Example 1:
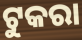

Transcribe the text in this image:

ଟୁକରା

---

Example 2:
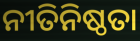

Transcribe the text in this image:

ନୀତିନିଷ୍ଠତା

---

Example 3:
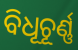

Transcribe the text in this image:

ବିଧୂଚୂର୍ଣ୍ଣ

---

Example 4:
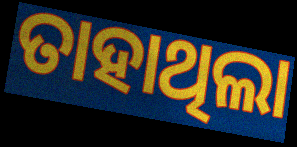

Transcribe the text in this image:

ତାହାଥିଲା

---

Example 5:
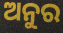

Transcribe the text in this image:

ଅନୁର